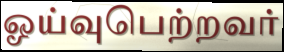
ஓய்வுபெற்றவர்